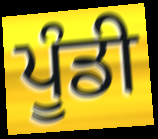
ਪੂੰਡੀ